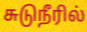
சுடுநீரில்